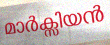
മാർക്സിയൻ